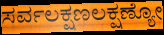
ಸರ್ವಲಕ್ಷಣಲಕ್ಷಣ್ಯೋ